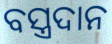
ବସ୍ତ୍ରଦାନ